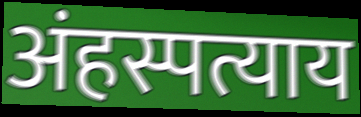
अंहस्पत्याय